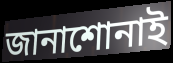
জানাশোনাই